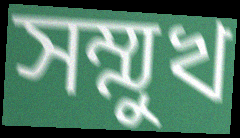
সম্মুখ